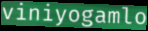
viniyogamlo